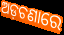
ଅଡ଼ଚଣାରେ